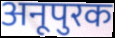
अनूपुरक